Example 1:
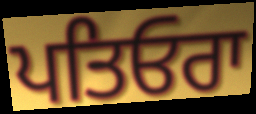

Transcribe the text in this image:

ਪਤਿਓਰਾ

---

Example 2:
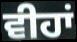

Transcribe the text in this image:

ਵੀਹਾਂ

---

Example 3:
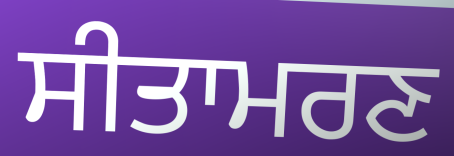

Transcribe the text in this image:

ਸੀਤਾਮਰਣ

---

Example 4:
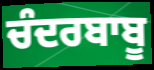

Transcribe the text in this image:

ਚੰਦਰਬਾਬੂ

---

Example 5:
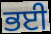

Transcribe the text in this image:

ਭਈ